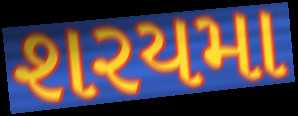
શરયમા